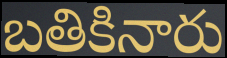
బతికినారు